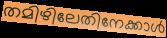
തമിഴിലേതിനേക്കാൾ